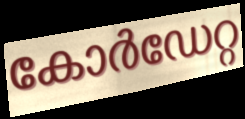
കോർഡേറ്റ